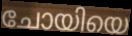
ചോയിയെ